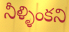
నీళ్ళింకని